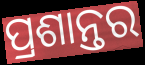
ପ୍ରଶାନ୍ତର